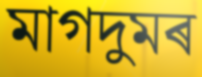
মাগদুমৰ